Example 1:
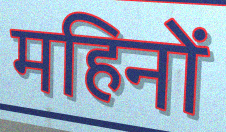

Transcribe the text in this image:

महिनों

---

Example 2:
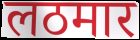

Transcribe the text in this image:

लठमार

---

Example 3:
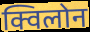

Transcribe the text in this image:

क्विलोन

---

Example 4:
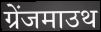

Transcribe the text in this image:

ग्रेंजमाउथ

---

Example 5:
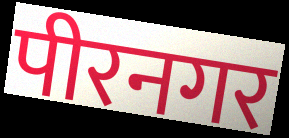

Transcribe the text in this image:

पीरनगर